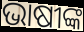
ଭାଷୀଙ୍କ